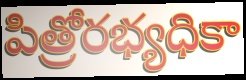
పిత్రోరభ్యధికా